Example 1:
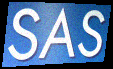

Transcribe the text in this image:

SAS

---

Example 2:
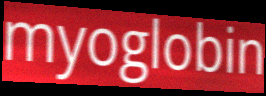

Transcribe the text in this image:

myoglobin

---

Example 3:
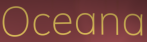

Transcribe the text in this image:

Oceana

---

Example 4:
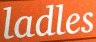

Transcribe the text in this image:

ladles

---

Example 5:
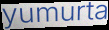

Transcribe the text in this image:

yumurta